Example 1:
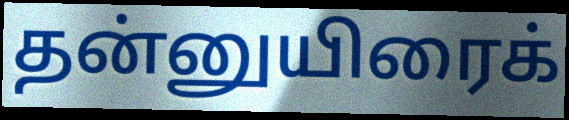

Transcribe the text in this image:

தன்னுயிரைக்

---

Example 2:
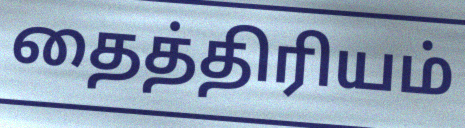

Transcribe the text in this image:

தைத்திரியம்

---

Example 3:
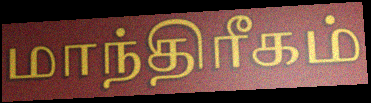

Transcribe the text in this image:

மாந்திரீகம்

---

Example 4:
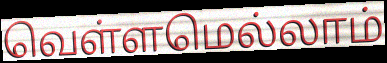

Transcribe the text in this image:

வெள்ளமெல்லாம்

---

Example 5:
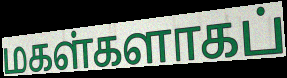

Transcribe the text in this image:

மகள்களாகப்